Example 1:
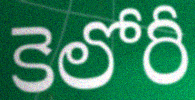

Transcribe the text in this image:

కెలోరీ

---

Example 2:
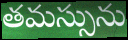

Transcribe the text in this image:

తమస్సును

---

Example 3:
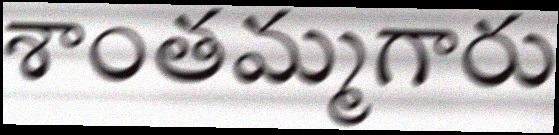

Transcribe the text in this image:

శాంతమ్మగారు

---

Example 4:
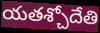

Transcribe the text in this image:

యతశ్చోదేతి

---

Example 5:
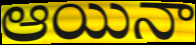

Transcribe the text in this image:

ఆయినా